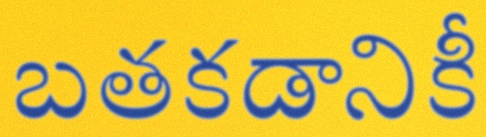
బతకడానికీ